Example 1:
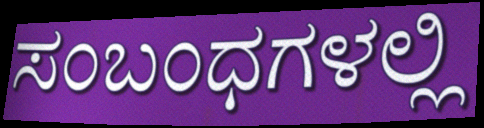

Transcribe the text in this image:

ಸಂಬಂಧಗಳಲ್ಲಿ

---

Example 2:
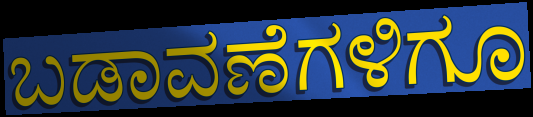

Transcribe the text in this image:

ಬಡಾವಣೆಗಳಿಗೂ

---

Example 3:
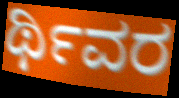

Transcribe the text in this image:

ರ್ಥಿವರ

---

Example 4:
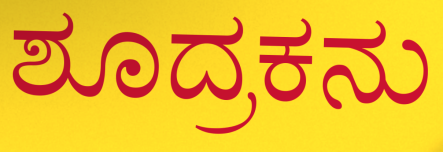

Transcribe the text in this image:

ಶೂದ್ರಕನು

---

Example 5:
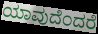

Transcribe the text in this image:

ಯಾವುದೆಂದರೆ